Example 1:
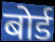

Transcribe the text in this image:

बोर्ड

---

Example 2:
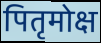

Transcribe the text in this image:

पितृमोक्ष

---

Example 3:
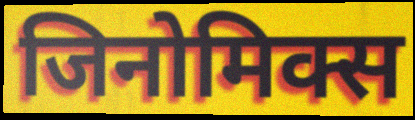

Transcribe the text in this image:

जिनोमिक्स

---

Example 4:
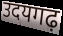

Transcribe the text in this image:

उदयगढ़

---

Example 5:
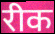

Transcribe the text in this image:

रीक